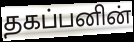
தகப்பனின்